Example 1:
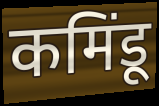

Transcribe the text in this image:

कमिंडू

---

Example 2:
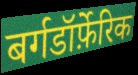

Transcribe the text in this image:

बर्गडॉर्फ़ेरिक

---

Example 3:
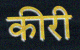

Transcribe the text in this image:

कीरी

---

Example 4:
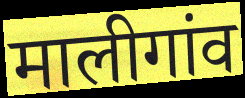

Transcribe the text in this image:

मालीगांव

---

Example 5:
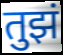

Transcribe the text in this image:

तुझं